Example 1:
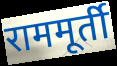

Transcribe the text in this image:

राममूर्ती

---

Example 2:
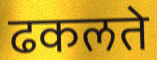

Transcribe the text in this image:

ढकलते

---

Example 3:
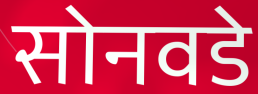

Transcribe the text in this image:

सोनवडे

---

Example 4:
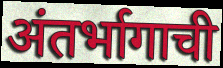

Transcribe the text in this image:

अंतर्भागाची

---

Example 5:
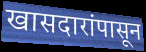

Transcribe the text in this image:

खासदारांपासून